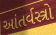
આંતર્વસ્ત્રો